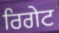
ਰਿਗੇਟ